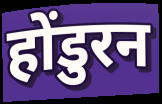
होंडुरन